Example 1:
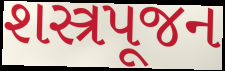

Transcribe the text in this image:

શસ્ત્રપૂજન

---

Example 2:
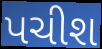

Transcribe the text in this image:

પચીશ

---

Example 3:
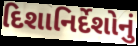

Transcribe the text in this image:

દિશાનિર્દેશોનું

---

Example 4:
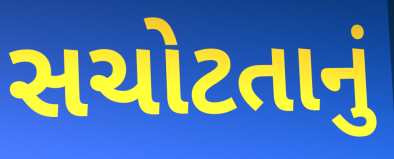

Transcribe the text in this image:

સચોટતાનું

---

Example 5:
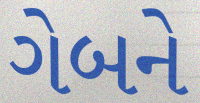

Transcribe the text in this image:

ગેબને